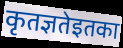
कृतज्ञतेइतका